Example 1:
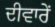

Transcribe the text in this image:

ਦੀਵਾਰੇਂ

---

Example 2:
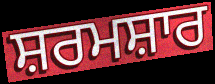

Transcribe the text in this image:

ਸ਼ਰਮਸ਼ਾਰ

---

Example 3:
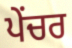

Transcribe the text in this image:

ਪੇਂਚਰ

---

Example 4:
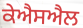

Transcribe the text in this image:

ਕੇਐਸਐਲ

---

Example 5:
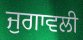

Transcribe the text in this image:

ਜੁਗਾਵਲੀ